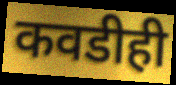
कवडीही